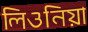
লিওনিয়া